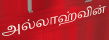
அல்லாஹ்வின்